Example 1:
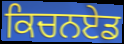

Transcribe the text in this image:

ਕਿਚਨਏਡ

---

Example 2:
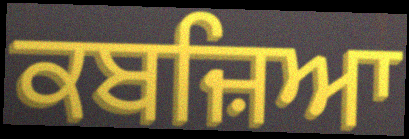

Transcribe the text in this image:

ਕਬਜ਼ਿਆ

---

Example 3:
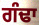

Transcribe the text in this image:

ਗੰਢਾ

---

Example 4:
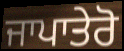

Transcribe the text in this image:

ਜਾਪਾਤੇਰੋ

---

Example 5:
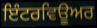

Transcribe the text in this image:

ਇੰਟਰਵਿਊਅਰ